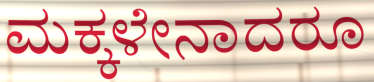
ಮಕ್ಕಳೇನಾದರೂ